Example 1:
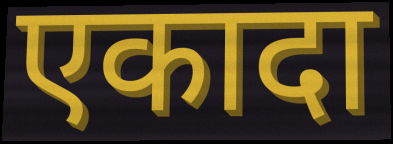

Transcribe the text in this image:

एकादा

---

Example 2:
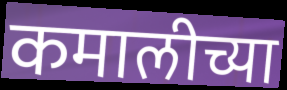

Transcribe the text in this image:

कमालीच्या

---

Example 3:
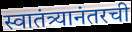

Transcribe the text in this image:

स्वातंत्र्यानंतरची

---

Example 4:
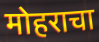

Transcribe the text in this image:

मोहराचा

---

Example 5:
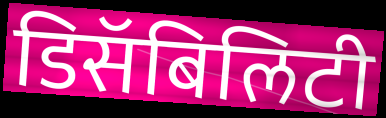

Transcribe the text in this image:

डिसॅबिलिटी